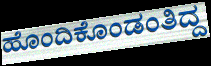
ಹೊಂದಿಕೊಂಡಂತಿದ್ದ